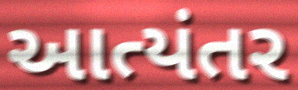
આત્યંતર